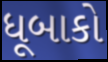
ધૂબાકો